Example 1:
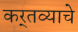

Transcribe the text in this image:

कर्तव्याचे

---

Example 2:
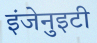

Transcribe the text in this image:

इंजेनुइटी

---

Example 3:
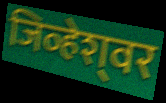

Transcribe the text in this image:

जिव्हेश्वर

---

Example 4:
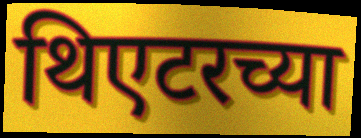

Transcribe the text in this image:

थिएटरच्या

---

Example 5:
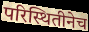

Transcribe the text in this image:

परिस्थितीनेच